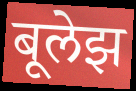
बूलेझ